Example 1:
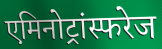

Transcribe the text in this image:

एमिनोट्रांस्फरेज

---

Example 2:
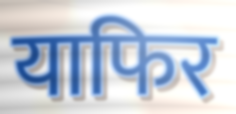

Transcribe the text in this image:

याफिर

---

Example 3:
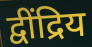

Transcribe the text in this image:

द्वींद्रिय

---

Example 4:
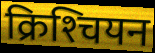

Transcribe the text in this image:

क्रिश्चियन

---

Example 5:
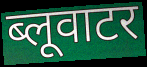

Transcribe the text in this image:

ब्लूवाटर